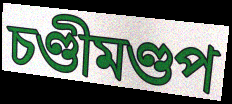
চণ্ডীমণ্ডপ